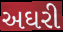
અઘરી